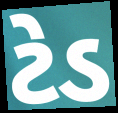
ટેડ